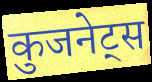
कुजनेट्स